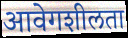
आवेगशीलता